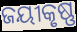
ଜୟୀକୃଷ୍ଣ